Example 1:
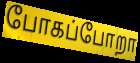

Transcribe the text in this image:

போகப்போறா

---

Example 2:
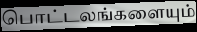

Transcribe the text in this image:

பொட்டலங்களையும்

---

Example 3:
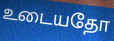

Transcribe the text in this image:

உடையதோ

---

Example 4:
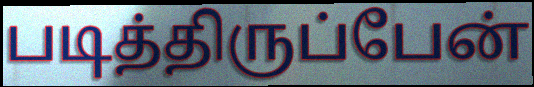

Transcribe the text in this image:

படித்திருப்பேன்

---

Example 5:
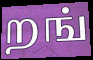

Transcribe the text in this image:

றங்